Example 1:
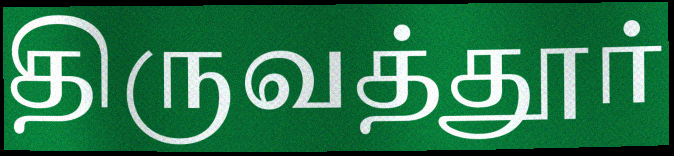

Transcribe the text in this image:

திருவத்தூர்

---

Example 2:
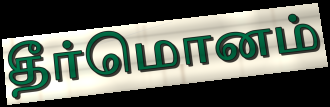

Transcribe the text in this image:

தீர்மொனம்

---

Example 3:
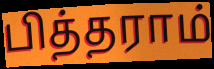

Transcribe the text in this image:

பித்தராம்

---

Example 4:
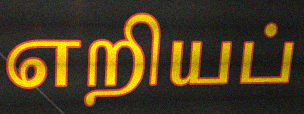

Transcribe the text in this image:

எறியப்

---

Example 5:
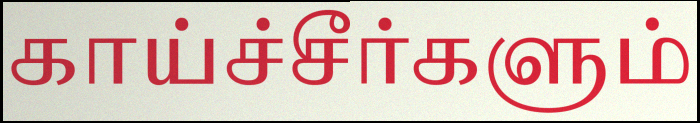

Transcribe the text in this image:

காய்ச்சீர்களும்